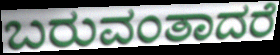
ಬರುವಂತಾದರೆ